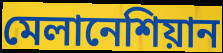
মেলানেশিয়ান